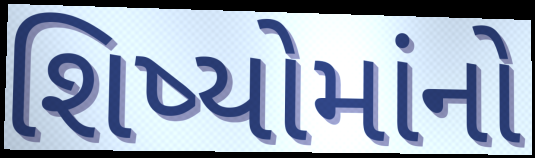
શિષ્યોમાંનો